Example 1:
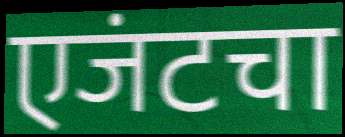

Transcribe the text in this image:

एजंटचा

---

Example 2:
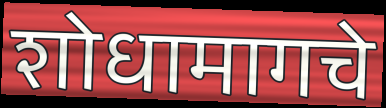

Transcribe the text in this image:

शोधामागचे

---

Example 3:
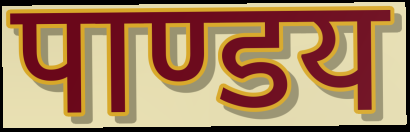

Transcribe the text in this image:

पाण्डय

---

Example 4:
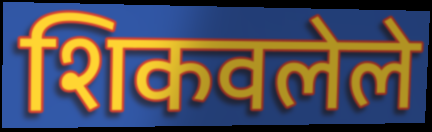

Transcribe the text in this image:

शिकवलेले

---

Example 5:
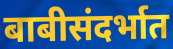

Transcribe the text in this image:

बाबीसंदर्भात